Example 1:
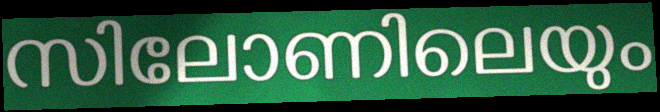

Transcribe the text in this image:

സിലോണിലെയും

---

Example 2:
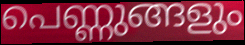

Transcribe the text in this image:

പെണ്ണുങ്ങളും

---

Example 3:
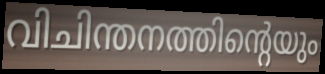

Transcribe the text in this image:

വിചിന്തനത്തിന്റെയും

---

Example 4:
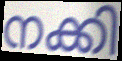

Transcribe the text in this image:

നക്കി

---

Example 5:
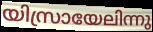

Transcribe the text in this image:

യിസ്രായേലിന്നു